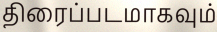
திரைப்படமாகவும்